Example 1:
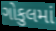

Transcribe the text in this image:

ગોકુલમાં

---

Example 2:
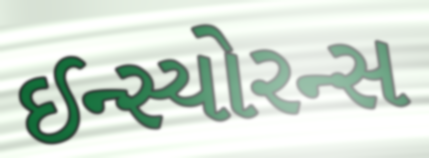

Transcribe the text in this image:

ઈન્સ્યોરન્સ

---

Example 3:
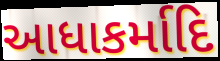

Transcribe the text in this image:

આધાકર્માદિ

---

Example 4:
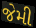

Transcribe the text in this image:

જેમી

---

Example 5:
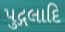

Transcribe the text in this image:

પુદ્ગલાદિ